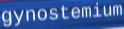
gynostemium